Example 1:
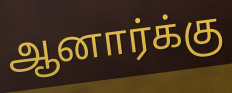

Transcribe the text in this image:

ஆனார்க்கு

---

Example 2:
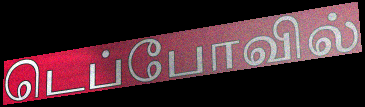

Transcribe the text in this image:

டெப்போவில்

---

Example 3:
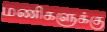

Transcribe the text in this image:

மணிகளுக்கு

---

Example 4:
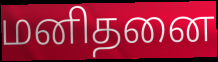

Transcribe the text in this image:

மனிதனை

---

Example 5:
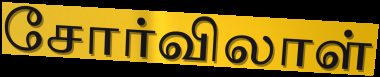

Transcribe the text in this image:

சோர்விலாள்